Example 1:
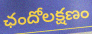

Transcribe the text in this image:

ఛందోలక్షణం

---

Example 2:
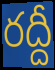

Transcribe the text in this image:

రద్దీ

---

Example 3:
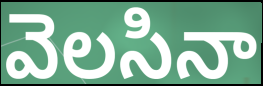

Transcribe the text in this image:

వెలసినా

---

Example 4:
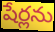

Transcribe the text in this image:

షేర్లను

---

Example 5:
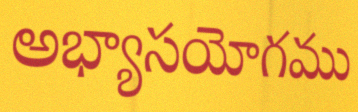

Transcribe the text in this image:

అభ్యాసయోగము